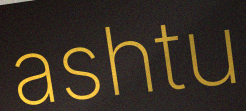
ashtu